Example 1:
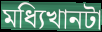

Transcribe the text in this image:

মধ্যিখানটা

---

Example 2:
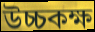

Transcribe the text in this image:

উচ্চকক্ষ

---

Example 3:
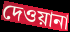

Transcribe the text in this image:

দেওয়ানা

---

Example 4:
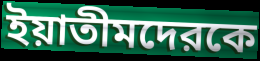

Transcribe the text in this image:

ইয়াতীমদেরকে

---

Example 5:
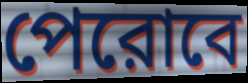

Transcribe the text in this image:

পেরোবে